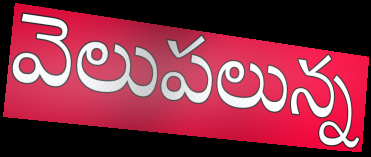
వెలుపలున్న